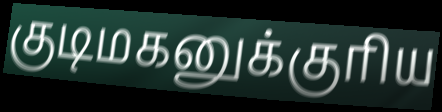
குடிமகனுக்குரிய